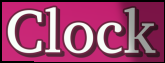
Clock